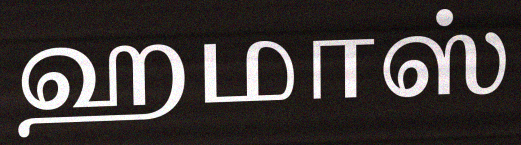
ஹமாஸ்